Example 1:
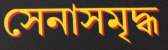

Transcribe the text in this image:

সেনাসমৃদ্ধ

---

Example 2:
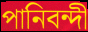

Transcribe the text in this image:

পানিবন্দী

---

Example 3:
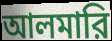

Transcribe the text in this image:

আলমারি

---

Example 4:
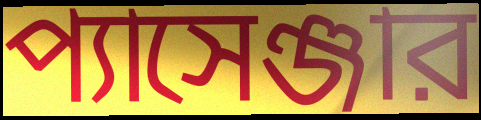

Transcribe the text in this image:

প্যাসেঞ্জার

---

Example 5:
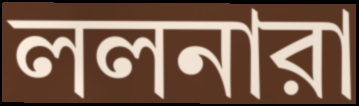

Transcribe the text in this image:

ললনারা